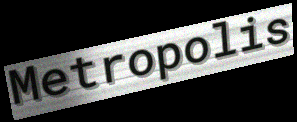
Metropolis